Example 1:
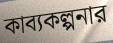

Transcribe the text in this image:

কাব্যকল্পনার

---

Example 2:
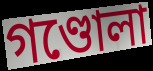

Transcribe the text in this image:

গণ্ডোলা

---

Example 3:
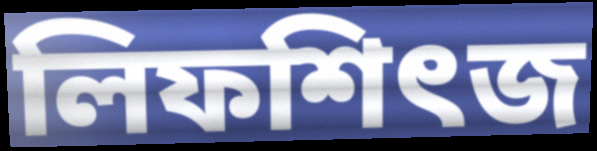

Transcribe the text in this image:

লিফশিৎজ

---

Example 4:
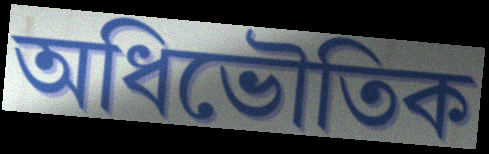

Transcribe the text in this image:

অধিভৌতিক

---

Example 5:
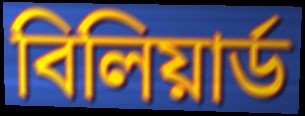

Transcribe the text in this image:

বিলিয়ার্ড